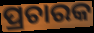
ପ୍ରଚାରକ